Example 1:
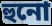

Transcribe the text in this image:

হুনো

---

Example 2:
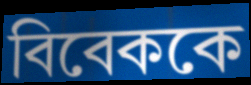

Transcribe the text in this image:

বিবেককে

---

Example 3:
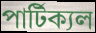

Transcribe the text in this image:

পার্টিক্যল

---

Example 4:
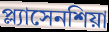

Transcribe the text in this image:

প্ল্যাসেনশিয়া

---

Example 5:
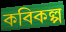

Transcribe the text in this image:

কবিকল্প